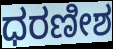
ಧರಣೀಶ